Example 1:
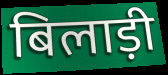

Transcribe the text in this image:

बिलाड़ी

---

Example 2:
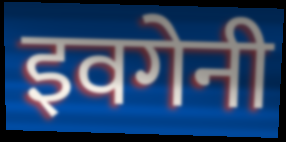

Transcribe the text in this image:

इवगेनी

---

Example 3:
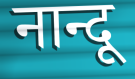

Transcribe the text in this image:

नान्दू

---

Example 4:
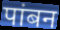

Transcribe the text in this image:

पांबन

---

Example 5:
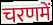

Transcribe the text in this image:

चरणमें